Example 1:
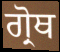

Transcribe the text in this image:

ਗ੍ਰੋਥ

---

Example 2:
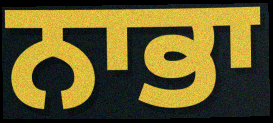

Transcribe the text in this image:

ਨਾਭਾ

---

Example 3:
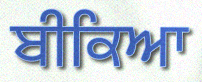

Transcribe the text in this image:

ਬੀਕਿਆ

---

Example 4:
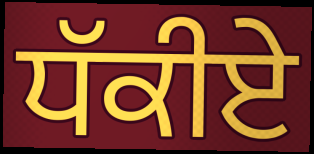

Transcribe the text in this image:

ਧੱਕੀਏ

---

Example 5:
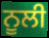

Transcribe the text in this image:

ਨੂਲੀ